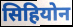
सिहियोन